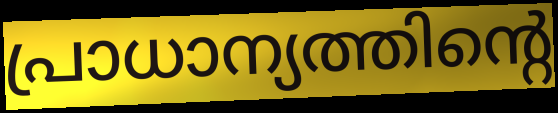
പ്രാധാന്യത്തിന്റെ